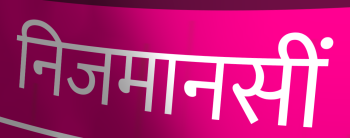
निजमानसीं